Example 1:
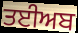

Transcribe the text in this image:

ਤਈਅਬ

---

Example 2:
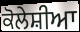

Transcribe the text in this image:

ਕੋਲੇਸ਼ੀਆ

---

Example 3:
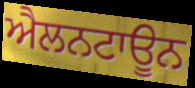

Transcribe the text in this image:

ਐਲਨਟਾਊਨ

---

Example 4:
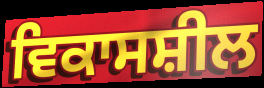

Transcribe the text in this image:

ਵਿਕਾਸਸ਼ੀਲ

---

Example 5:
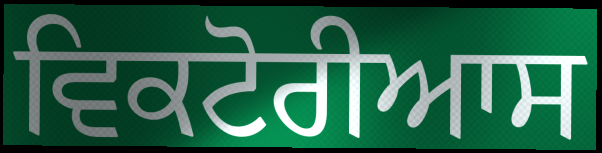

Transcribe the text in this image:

ਵਿਕਟੋਰੀਆਸ